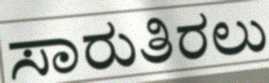
ಸಾರುತಿರಲು